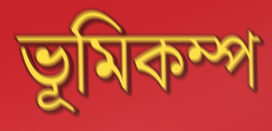
ভূমিকম্প